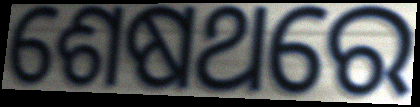
ଶେଷଥରେ